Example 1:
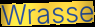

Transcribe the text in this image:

Wrasse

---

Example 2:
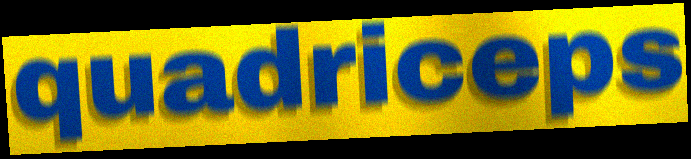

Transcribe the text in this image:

quadriceps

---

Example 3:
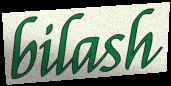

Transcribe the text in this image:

bilash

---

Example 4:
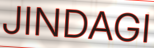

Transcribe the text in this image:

JINDAGI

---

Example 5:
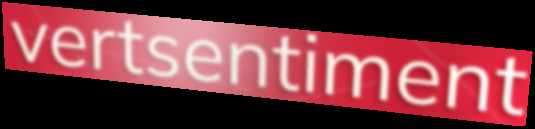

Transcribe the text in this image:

vertsentiment